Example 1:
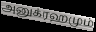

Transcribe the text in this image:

அனுக்ரஹமும்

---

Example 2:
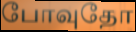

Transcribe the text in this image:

போவுதோ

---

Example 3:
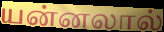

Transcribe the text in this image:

யன்னலால்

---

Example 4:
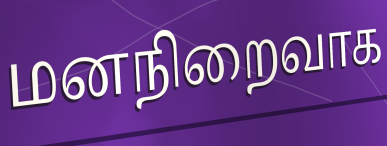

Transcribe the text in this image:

மனநிறைவாக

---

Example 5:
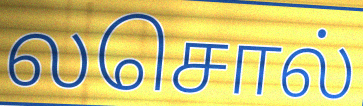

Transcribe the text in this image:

லசொல்